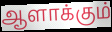
ஆளாக்கும்